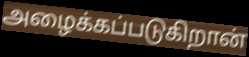
அழைக்கப்படுகிறான்